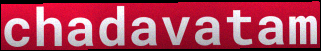
chadavatam